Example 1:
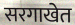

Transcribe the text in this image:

सरगाखेत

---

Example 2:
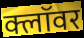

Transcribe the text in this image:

क्लॉवर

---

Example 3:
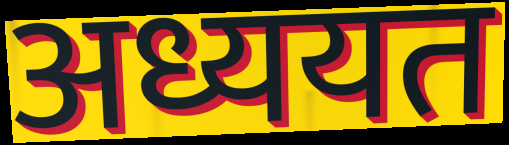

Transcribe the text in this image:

अध्ययत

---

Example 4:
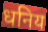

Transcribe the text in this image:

धनिय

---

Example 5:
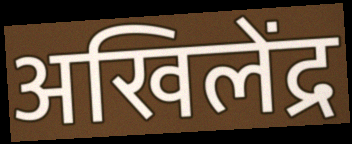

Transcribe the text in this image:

अखिलेंद्र